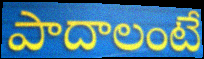
పాదాలంటే